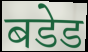
बडेड